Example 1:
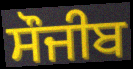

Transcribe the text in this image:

ਸੌਜੀਬ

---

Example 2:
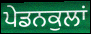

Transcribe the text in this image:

ਪੇਡਨਕੁਲਾਂ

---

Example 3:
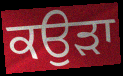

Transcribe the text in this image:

ਕਉੜਾ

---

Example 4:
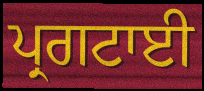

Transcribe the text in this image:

ਪ੍ਰਗਟਾਈ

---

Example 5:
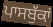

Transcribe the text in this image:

ਪਾਸਬੁੱਕਾਂ